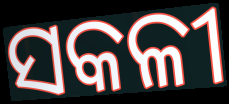
ସକଳୀ